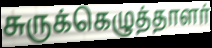
சுருக்கெழுத்தாளர்